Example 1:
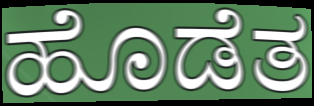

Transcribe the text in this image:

ಹೊಡೆತ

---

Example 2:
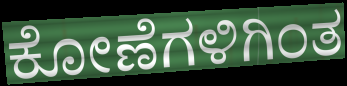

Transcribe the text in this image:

ಕೋಣೆಗಳಿಗಿಂತ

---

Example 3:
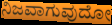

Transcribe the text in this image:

ನಿಜವಾಗುವುದೋ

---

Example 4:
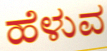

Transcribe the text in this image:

ಹೆಳುವ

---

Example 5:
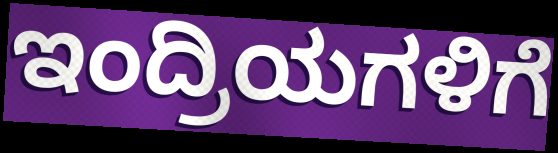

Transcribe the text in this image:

ಇಂದ್ರಿಯಗಳಿಗೆ